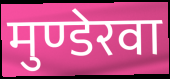
मुण्डेरवा